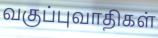
வகுப்புவாதிகள்